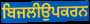
ਬਿਜਲੀਉਪਕਰਨ